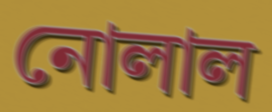
নোলাল